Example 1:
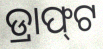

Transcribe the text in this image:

ଡ୍ରାଫ୍‌ଟ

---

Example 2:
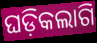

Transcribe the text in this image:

ଘଡ଼ିକଲାଗି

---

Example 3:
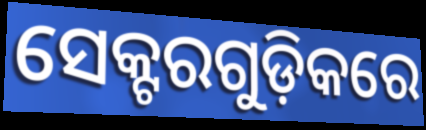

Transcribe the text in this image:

ସେକ୍ଟରଗୁଡ଼ିକରେ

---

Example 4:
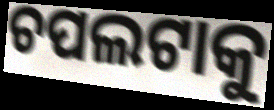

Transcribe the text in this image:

ଚପଲଟାକୁ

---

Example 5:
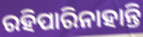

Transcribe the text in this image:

ରହିପାରିନାହାନ୍ତି